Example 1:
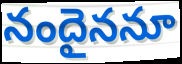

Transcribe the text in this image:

నందైననూ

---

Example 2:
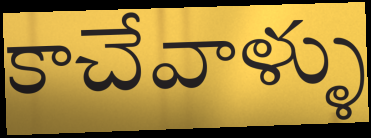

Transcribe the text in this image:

కాచేవాళ్ళు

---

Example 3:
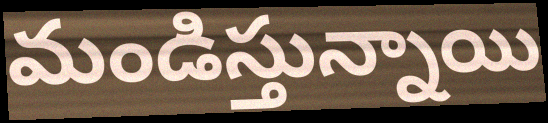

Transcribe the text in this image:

మండిస్తున్నాయి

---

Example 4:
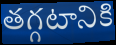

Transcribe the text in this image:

తగ్గటానికి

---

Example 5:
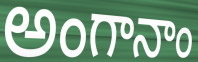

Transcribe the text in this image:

అంగానాం